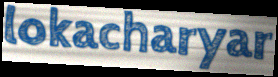
lokacharyar